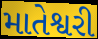
માતેશ્વરી